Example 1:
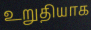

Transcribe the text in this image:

உறுதியாக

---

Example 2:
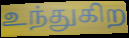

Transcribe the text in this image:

உந்துகிற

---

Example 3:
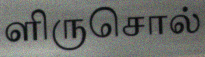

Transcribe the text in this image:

ளிருசொல்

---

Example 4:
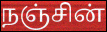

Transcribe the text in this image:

நஞ்சின்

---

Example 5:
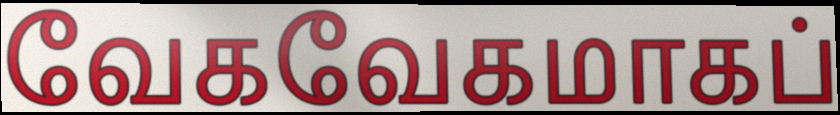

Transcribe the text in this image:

வேகவேகமாகப்